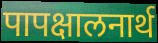
पापक्षालनार्थ